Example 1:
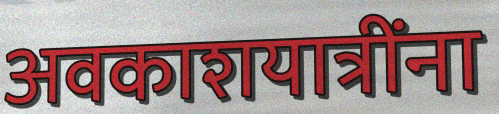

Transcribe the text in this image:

अवकाशयात्रींना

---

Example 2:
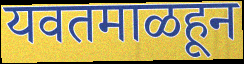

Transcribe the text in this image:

यवतमाळहून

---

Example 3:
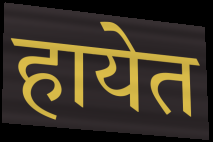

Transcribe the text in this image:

हायेत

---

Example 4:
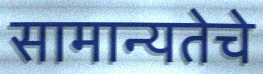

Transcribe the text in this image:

सामान्यतेचे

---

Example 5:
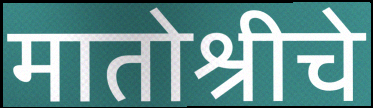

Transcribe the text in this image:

मातोश्रीचे